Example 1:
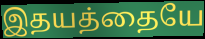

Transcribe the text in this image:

இதயத்தையே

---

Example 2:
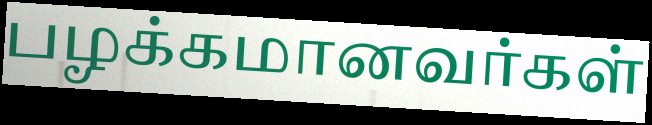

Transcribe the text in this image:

பழக்கமானவர்கள்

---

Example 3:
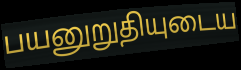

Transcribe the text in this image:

பயனுறுதியுடைய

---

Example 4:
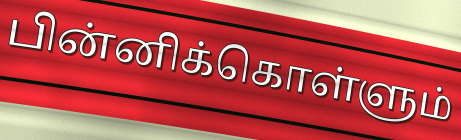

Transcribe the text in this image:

பின்னிக்கொள்ளும்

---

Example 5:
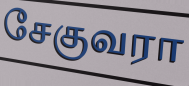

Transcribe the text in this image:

சேகுவரா